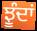
ਝੂੰਦਾਂ